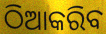
ଠିଆକରିବ